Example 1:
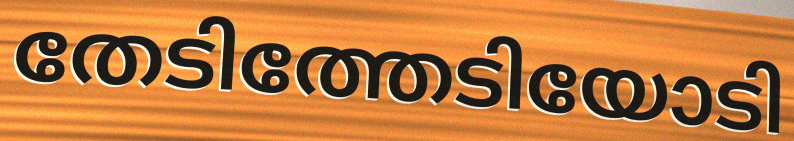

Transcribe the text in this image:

തേടിത്തേടിയോടി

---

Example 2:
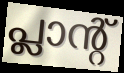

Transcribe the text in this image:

പ്ലാന്റ്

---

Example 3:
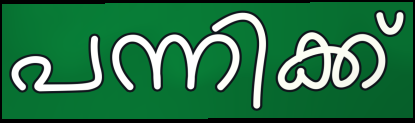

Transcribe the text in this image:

പന്നിക്ക്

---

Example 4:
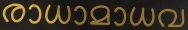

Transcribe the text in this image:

രാധാമാധവ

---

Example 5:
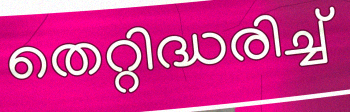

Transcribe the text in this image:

തെറ്റിദ്ധരിച്ച്